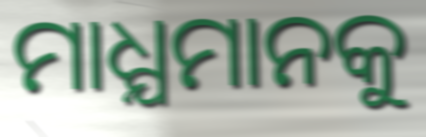
ମାଧ୍ଯମାନକୁ